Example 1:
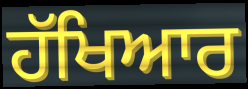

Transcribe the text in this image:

ਹੱਖਿਆਰ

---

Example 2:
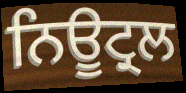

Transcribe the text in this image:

ਨਿਊਟ੍ਰਲ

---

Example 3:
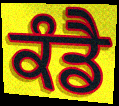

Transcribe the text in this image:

ਕੰਡੈ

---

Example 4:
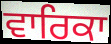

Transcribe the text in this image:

ਵਾਰਿਕਾ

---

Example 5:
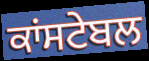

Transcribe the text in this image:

ਕਾਂਸਟੇਬਲ